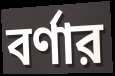
বর্ণার